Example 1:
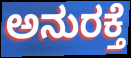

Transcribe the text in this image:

ಅನುರಕ್ತೆ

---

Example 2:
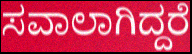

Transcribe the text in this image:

ಸವಾಲಾಗಿದ್ದರೆ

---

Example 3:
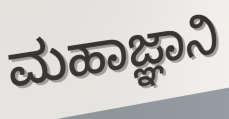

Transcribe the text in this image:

ಮಹಾಜ್ಞಾನಿ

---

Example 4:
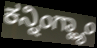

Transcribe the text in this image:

ಕನ್ನಿಂಗ್ಹ್ಯಾಂ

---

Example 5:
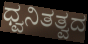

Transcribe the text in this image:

ಧ್ವನಿತತ್ವದ